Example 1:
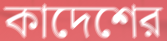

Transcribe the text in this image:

কাদেশের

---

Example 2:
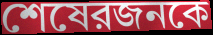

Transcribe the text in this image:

শেষেরজনকে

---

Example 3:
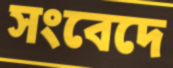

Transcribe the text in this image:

সংবেদে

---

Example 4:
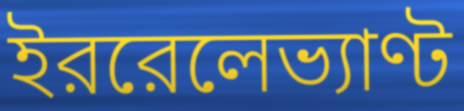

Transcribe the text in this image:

ইররেলেভ্যাণ্ট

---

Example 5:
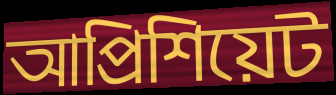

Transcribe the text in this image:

আপ্রিশিয়েট